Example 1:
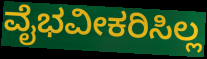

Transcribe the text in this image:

ವೈಭವೀಕರಿಸಿಲ್ಲ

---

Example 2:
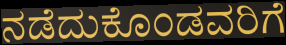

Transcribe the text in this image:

ನಡೆದುಕೊಂಡವರಿಗೆ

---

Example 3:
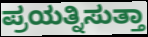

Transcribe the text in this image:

ಪ್ರಯತ್ನಿಸುತ್ತಾ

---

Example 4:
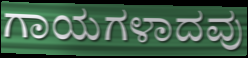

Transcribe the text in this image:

ಗಾಯಗಳಾದವು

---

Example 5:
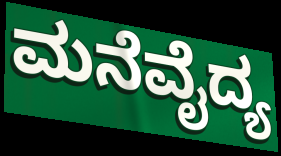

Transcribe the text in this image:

ಮನೆವೈದ್ಯ